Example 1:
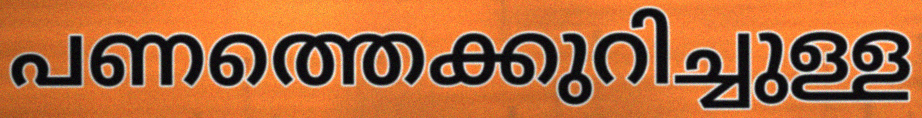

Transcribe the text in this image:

പണത്തെക്കുറിച്ചുള്ള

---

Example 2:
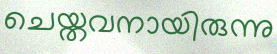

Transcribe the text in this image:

ചെയ്തവനായിരുന്നു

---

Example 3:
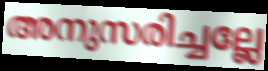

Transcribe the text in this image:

അനുസരിച്ചല്ലേ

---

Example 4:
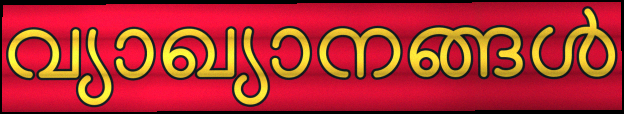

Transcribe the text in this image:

വ്യാഖ്യാനങ്ങൾ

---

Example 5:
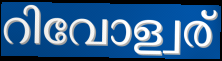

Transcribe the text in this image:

റിവോള്വര്